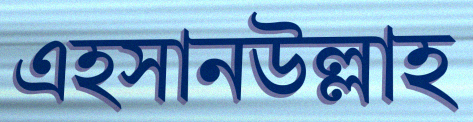
এহসানউল্লাহ